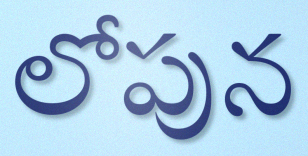
లోపున